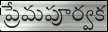
ప్రేమపూర్వక